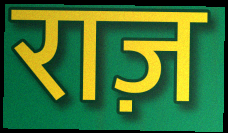
राज़